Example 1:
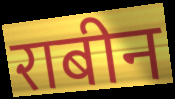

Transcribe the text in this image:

राबीन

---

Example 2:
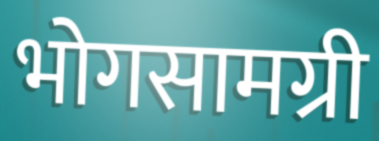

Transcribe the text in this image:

भोगसामग्री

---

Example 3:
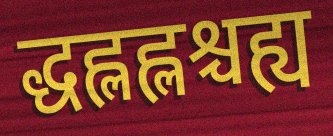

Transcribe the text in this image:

द्धह्लह्लश्चह्य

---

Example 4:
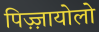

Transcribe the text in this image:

पिज़्ज़ायोलो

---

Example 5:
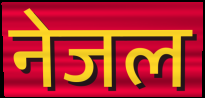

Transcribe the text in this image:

नेजल